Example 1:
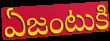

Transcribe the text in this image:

ఏజంటుకి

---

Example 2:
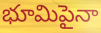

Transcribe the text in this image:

భూమిపైనా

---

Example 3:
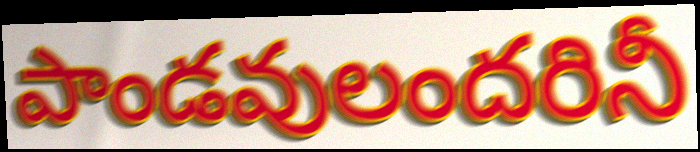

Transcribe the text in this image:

పాండవులందరినీ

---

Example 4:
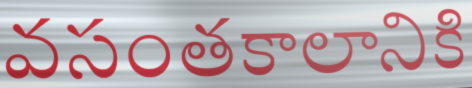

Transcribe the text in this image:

వసంతకాలానికి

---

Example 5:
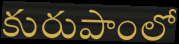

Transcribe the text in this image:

కురుపాంలో